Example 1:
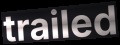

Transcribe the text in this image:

trailed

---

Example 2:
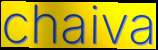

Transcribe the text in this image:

chaiva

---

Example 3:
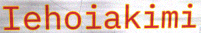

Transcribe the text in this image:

Iehoiakimi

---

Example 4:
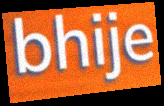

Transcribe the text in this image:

bhije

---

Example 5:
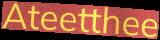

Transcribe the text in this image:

Ateetthee